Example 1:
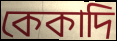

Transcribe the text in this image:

কেকাদি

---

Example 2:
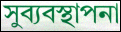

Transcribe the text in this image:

সুব্যবস্থাপনা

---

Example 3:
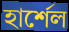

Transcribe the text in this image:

হার্শেল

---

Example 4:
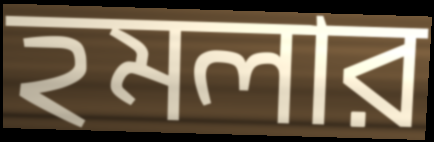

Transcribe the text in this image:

হমলার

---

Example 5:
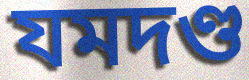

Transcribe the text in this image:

যমদণ্ড